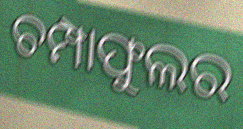
ଚମ୍ପାଫୁଲର